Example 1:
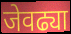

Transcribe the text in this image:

जेवढ्या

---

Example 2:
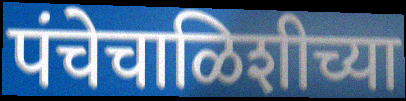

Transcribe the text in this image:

पंचेचाळिशीच्या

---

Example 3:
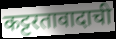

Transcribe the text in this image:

कट्टरतावादाची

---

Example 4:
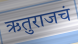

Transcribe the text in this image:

ऋतुराजचं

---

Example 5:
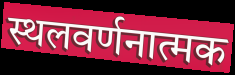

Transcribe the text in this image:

स्थलवर्णनात्मक